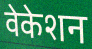
वेकेशन